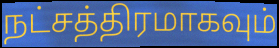
நட்சத்திரமாகவும்